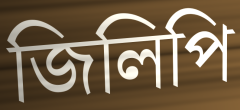
জিলিপি